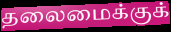
தலைமைக்குக்